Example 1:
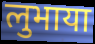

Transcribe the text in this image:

लुभाया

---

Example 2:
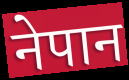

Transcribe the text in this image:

नेपान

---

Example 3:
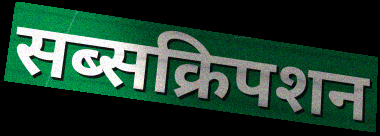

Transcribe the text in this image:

सब्सक्रिपशन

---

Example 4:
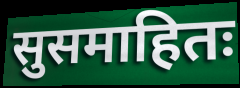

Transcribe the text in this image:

सुसमाहितः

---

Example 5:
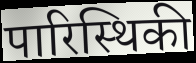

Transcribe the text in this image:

पारिस्थिकी